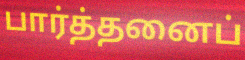
பார்த்தனைப்